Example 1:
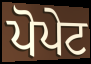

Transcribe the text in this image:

ਪੋਪੇਟ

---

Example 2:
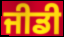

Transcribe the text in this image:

ਜੀਡੀ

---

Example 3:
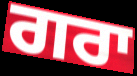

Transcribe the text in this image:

ਗਰਾ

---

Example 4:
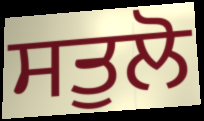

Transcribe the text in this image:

ਸਤੁਲੋ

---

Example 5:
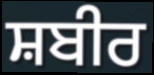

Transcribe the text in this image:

ਸ਼ਬੀਰ